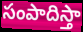
సంపాదిస్తా